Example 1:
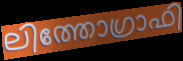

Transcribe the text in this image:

ലിത്തോഗ്രാഫി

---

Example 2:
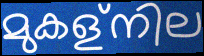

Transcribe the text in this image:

മുകള്നില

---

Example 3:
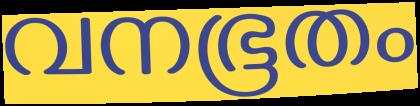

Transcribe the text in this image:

വനഭൂതം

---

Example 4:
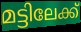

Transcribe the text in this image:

മട്ടിലേക്ക്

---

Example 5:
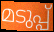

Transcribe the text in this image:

മടുപ്പ്